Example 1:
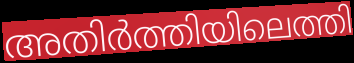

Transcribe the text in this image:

അതിർത്തിയിലെത്തി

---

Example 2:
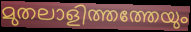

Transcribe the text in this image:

മുതലാളിത്തത്തേയും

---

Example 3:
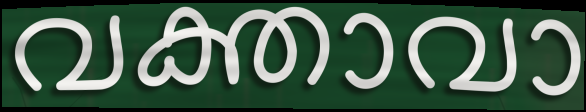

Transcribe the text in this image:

വക്താവാ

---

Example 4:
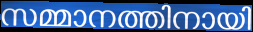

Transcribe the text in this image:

സമ്മാനത്തിനായി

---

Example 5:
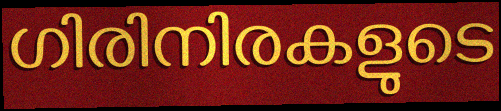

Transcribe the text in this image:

ഗിരിനിരകളുടെ